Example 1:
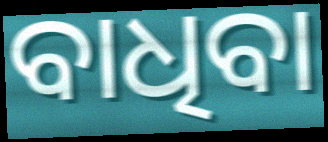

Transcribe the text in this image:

ବାଧିବା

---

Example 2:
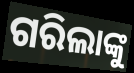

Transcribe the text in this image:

ଗରିଲାଙ୍କୁ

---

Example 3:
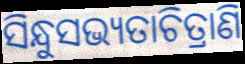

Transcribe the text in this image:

ସିନ୍ଧୁସଭ୍ୟତାଚିତ୍ରାଣି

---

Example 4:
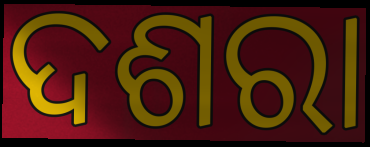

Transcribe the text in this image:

ଦଶରା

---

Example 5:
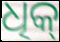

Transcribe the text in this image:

ଧିକ୍